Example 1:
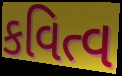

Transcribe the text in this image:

કવિત્વ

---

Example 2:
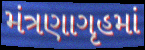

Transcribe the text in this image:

મંત્રણાગૃહમાં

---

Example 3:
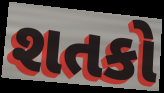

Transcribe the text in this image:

શતકો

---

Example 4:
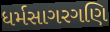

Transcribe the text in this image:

ધર્મસાગરગણિ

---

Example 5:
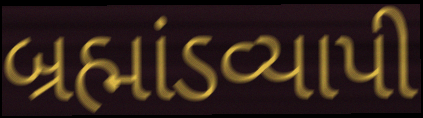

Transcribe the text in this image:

બ્રહ્માંડવ્યાપી